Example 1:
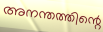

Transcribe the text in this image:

അനന്തത്തിന്റെ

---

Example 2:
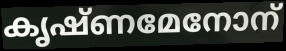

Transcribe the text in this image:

കൃഷ്ണമേനോന്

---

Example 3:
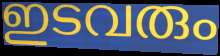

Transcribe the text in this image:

ഇടവരും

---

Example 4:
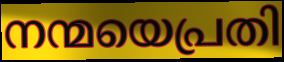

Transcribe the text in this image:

നന്മയെപ്രതി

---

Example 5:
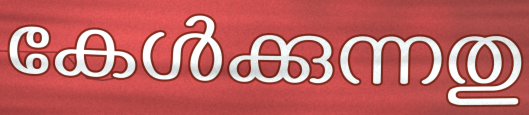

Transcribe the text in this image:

കേൾക്കുന്നതു